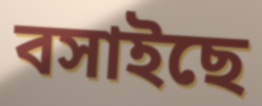
বসাইছে